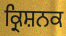
ਕ੍ਰਿਸ਼ਨਕ